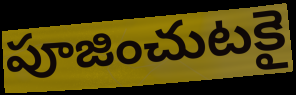
పూజించుటకై